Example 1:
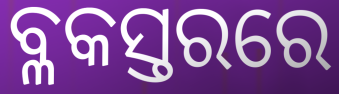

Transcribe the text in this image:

ବ୍ଳକସ୍ତରରେ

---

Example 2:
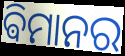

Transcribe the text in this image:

ଵିମାନର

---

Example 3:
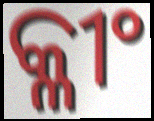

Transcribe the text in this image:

କ୍ଳୀଂ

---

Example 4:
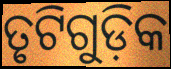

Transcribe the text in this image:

ତୃଟିଗୁଡ଼ିକ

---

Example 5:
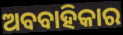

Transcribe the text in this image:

ଅବବାହିକାର